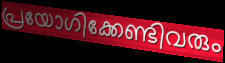
പ്രയോഗിക്കേണ്ടിവരും